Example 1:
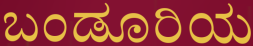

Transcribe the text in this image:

ಬಂಡೂರಿಯ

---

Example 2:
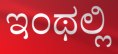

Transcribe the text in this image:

ಇಂಥಲ್ಲಿ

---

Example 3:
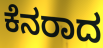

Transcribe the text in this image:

ಕೆನರಾದ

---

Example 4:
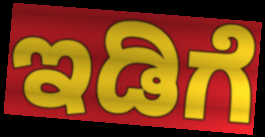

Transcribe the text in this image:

ಇಡಿಗೆ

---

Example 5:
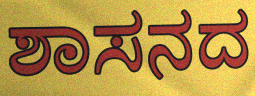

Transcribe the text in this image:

ಶಾಸನದ